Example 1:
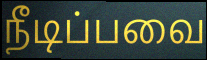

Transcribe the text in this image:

நீடிப்பவை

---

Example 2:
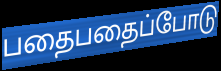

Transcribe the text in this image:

பதைபதைப்போடு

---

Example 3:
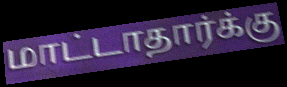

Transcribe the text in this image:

மாட்டாதார்க்கு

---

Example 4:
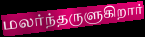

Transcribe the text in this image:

மலர்ந்தருளுகிறார்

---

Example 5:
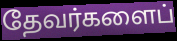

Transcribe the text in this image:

தேவர்களைப்